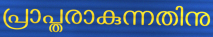
പ്രാപ്തരാകുന്നതിനു